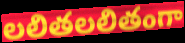
లలితలలితంగా